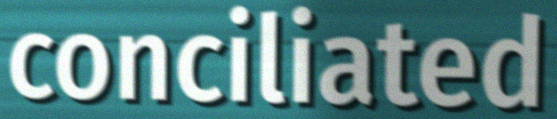
conciliated